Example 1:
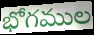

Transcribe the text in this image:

భోగముల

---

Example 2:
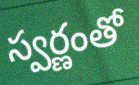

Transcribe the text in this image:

స్వర్ణంతో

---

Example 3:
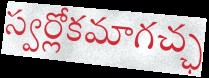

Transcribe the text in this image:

స్వర్లోకమాగచ్ఛ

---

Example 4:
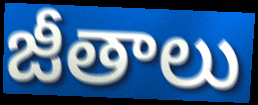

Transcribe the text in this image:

జీతాలు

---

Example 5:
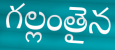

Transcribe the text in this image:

గల్లంతైన